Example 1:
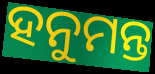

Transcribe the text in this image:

ହନୁମନ୍ତ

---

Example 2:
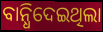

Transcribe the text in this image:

ବାନ୍ଧିଦେଇଥିଲା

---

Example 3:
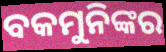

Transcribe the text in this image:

ବକମୁନିଙ୍କର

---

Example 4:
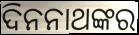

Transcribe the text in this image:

ଦିନନାଥଙ୍କର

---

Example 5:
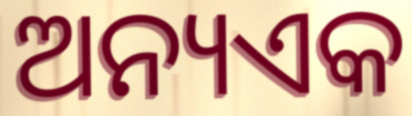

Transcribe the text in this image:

ଅନ୍ୟଏକ